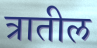
त्रातील